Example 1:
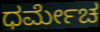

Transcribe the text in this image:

ಧರ್ಮೇಚ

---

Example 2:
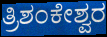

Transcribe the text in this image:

ತ್ರಿಶಂಕೇಶ್ವರ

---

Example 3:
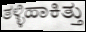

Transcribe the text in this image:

ತಳ್ಳಿಹಾಕಿತ್ತು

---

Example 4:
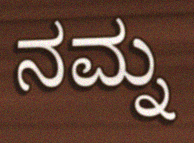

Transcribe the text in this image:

ನಮ್ನ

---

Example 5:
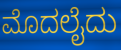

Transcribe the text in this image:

ಮೊದಲೈದು